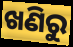
ଖଣିରୁ